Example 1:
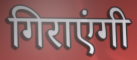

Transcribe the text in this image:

गिराएंगी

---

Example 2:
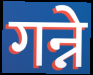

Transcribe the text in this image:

गन्ने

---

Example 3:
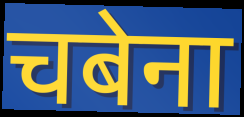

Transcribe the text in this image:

चबेना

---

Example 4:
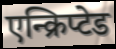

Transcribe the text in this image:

एन्क्रिप्टेड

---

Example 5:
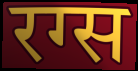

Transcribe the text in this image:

रग्स